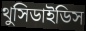
থুসিডাইডিস